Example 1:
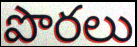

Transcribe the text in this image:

పొరలు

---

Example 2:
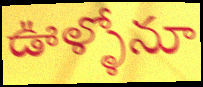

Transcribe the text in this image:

ఊళ్ళోనూ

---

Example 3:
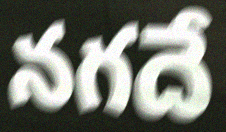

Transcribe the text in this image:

నగదే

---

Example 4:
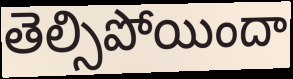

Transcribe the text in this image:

తెల్సిపోయిందా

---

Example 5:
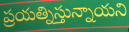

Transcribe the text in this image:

ప్రయత్నిస్తున్నాయని